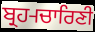
ਬ੍ਰਹ੍ਮਚਾਰਿਣੀ